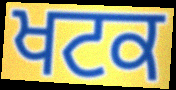
ਖਟਕ